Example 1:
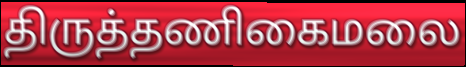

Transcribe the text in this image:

திருத்தணிகைமலை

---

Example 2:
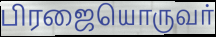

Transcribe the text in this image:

பிரஜையொருவர்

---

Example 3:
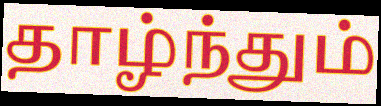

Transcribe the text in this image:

தாழ்ந்தும்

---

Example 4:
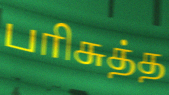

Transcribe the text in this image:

பரிசுத்த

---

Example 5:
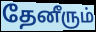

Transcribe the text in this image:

தேனீரும்